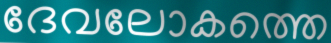
ദേവലോകത്തെ